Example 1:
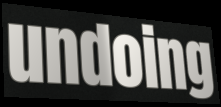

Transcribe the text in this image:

undoing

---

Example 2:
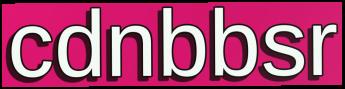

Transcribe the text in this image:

cdnbbsr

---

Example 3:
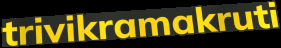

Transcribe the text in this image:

trivikramakruti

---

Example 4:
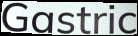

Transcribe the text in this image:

Gastric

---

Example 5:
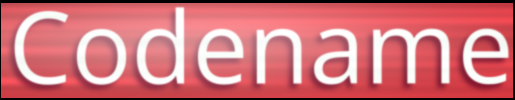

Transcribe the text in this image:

Codename